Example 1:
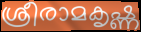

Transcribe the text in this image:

ശ്രീരാമകൃഷ്ണ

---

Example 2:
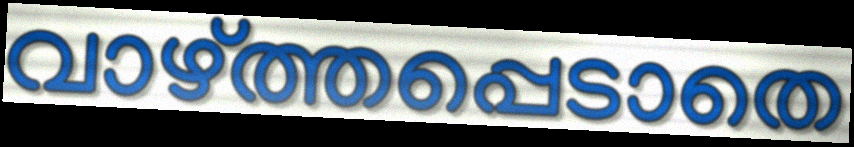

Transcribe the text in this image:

വാഴ്ത്തപ്പെടാതെ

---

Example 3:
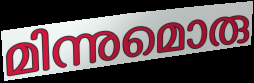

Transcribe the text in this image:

മിന്നുമൊരു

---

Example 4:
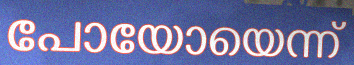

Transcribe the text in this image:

പോയോയെന്ന്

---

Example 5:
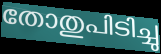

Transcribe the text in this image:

തോതുപിടിച്ചു